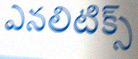
ఎనలిటిక్స్